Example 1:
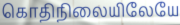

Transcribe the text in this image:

கொதிநிலையிலேயே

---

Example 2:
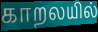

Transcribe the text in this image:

காறலயில்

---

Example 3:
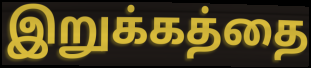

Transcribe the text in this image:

இறுக்கத்தை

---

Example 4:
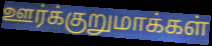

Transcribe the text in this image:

ஊர்க்குறுமாக்கள்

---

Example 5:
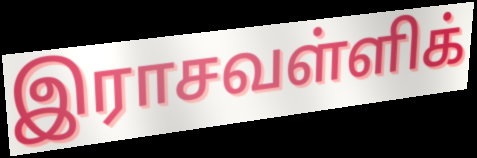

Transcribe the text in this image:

இராசவள்ளிக்